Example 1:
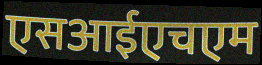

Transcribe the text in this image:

एसआईएचएम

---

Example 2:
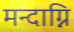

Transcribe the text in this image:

मन्दाग्नि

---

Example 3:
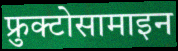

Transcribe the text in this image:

फ्रुक्टोसामाइन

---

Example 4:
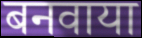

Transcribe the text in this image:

बनवाया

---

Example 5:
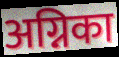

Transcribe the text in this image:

अग्निका